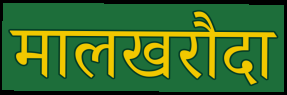
मालखरौदा